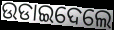
ଉଡାଇଦେଲେ